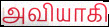
அவியாகி